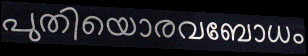
പുതിയൊരവബോധം